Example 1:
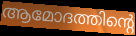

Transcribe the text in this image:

ആമോദത്തിന്റെ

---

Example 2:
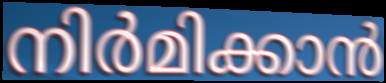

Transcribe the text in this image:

നിർമിക്കാൻ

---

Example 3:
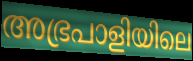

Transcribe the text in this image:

അഭ്രപാളിയിലെ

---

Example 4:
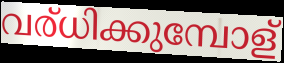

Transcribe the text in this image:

വര്ധിക്കുമ്പോള്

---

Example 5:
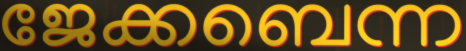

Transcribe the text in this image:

ജേക്കബെന്ന